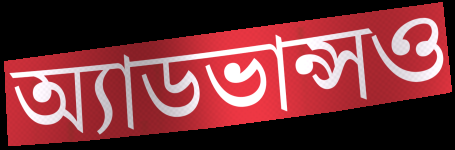
অ্যাডভান্সও